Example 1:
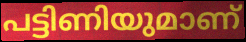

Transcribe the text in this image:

പട്ടിണിയുമാണ്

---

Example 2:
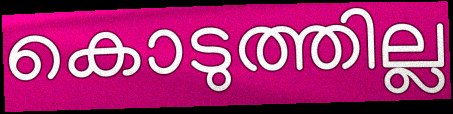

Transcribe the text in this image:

കൊടുത്തില്ല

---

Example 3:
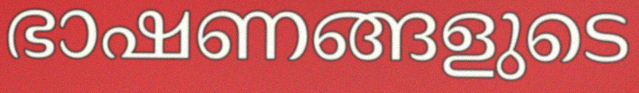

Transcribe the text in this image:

ഭാഷണങ്ങളുടെ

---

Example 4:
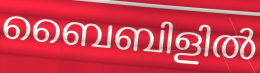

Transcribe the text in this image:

ബൈബിളിൽ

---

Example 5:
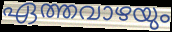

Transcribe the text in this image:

ഏത്തവാഴയും